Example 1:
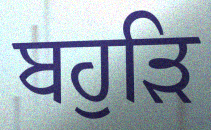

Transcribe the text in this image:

ਬਹੁੜਿ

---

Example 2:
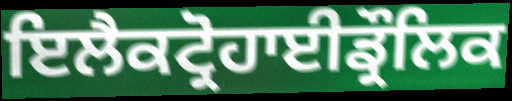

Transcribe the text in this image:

ਇਲੈਕਟ੍ਰੋਹਾਈਡ੍ਰੌਲਿਕ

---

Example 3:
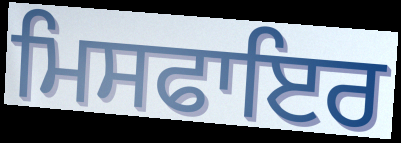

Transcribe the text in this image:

ਮਿਸਫਾਇਰ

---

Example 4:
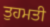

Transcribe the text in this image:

ਤੁਹਮਤੀ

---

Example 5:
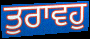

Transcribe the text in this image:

ਤੁਰਾਵਹੁ